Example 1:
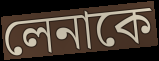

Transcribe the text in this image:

লেনাকে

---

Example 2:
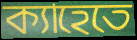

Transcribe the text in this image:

ক্যাহেতে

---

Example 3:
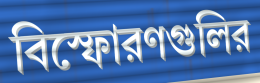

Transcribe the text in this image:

বিস্ফোরণগুলির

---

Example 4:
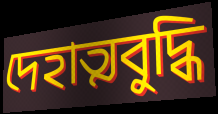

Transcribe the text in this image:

দেহাত্মবুদ্ধি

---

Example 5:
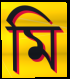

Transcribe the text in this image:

মি